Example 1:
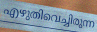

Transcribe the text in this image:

എഴുതിവെച്ചിരുന്ന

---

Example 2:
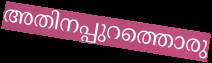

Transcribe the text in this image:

അതിനപ്പുറത്തൊരു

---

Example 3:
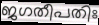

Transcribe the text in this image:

ജഗതീപതിഃ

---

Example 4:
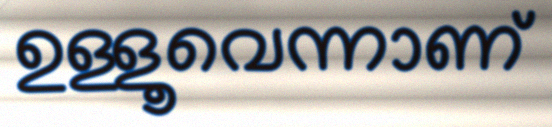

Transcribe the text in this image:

ഉള്ളൂവെന്നാണ്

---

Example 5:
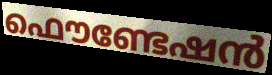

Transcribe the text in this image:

ഫൌണ്ടേഷൻ